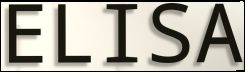
ELISA